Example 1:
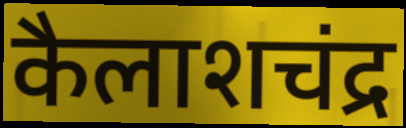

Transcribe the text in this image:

कैलाशचंद्र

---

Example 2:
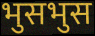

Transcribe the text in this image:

भुसभुस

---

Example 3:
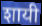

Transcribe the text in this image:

शायी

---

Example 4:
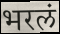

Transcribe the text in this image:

भरलं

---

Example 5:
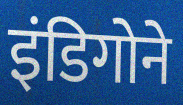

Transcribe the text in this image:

इंडिगोने